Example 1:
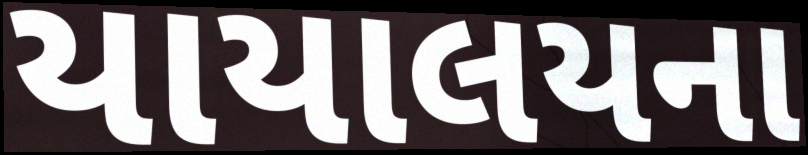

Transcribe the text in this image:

યાયાલયના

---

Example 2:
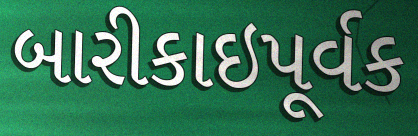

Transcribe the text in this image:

બારીકાઇપૂર્વક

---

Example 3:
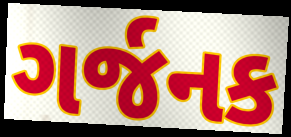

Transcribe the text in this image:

ગર્જનક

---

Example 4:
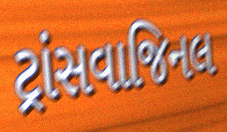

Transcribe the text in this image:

ટ્રાંસવાજિનલ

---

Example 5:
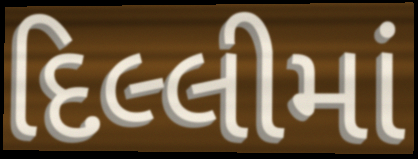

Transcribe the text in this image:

દિલ્લીમાં